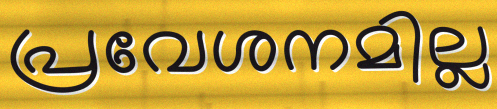
പ്രവേശനമില്ല